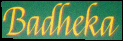
Badheka